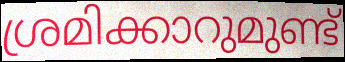
ശ്രമിക്കാറുമുണ്ട്